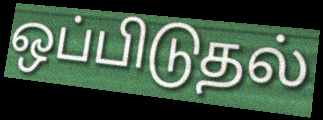
ஒப்பிடுதல்